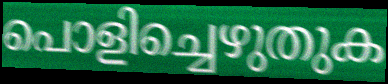
പൊളിച്ചെഴുതുക